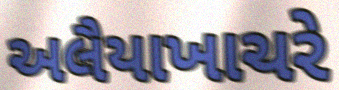
અલૈયાખાચરે